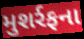
મુશર્રફના